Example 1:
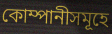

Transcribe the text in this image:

কোম্পানীসমূহে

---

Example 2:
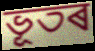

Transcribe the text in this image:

ভূতৰ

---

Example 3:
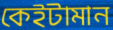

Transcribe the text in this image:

কেইটামান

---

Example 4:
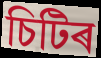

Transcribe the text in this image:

চিটিৰ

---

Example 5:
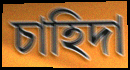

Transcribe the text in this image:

চাহিদা